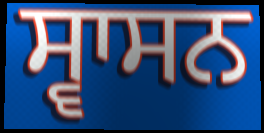
ਸ੍ਵਾਸਨ